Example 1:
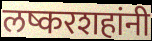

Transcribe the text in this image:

लष्करशहांनी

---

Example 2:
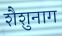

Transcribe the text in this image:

शैशुनाग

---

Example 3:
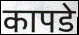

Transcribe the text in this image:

कापडे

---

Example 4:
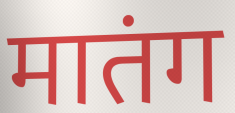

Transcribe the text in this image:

मातंग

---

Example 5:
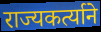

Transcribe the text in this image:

राज्यकर्त्याने